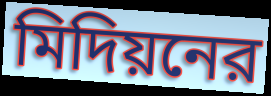
মিদিয়নের